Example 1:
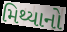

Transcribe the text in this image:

મિથ્યાનો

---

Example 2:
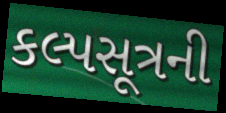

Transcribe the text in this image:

કલ્પસૂત્રની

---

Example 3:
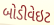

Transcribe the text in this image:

બોડીવેઇટ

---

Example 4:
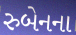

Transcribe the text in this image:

રુબેનના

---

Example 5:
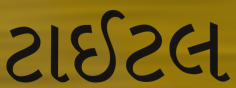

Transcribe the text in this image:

ટાઈટલ